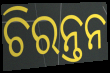
ଚିରନ୍ତନ